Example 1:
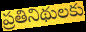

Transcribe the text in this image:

ప్రతినిథులకు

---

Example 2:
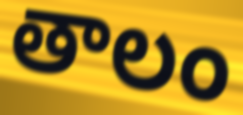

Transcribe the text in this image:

తాలం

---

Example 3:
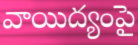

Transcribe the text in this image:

వాయిద్యంపై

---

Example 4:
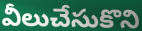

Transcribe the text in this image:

వీలుచేసుకొని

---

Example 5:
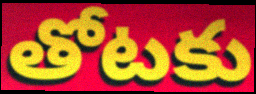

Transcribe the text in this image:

తోటకు